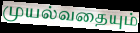
முயல்வதையும்